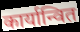
कार्यान्वित